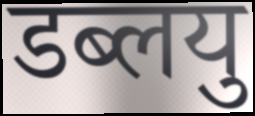
डब्लयु